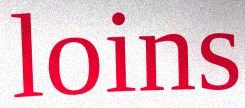
loins